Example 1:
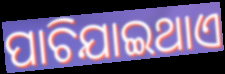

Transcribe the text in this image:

ପାଚିଯାଇଥାଏ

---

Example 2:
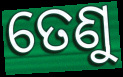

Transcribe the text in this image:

ତେଣୁ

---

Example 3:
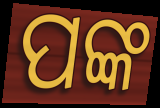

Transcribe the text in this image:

ପଙ୍କ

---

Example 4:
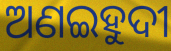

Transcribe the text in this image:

ଅଣଇହୁଦୀ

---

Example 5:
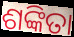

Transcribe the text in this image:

ଶଙ୍କିତା